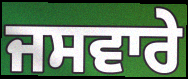
ਜਸਵਾਰੇ